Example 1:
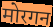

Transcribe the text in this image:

मोरगन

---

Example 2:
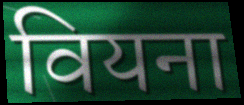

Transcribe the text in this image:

वियना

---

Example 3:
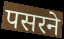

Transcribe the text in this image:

पसरने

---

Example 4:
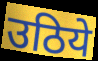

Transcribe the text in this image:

उठिये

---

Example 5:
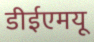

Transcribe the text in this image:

डीईएमयू